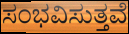
ಸಂಭವಿಸುತ್ತವೆ